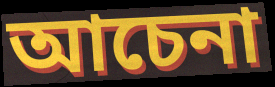
আচেনা